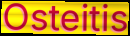
Osteitis